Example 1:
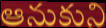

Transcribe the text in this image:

ఆనుకుని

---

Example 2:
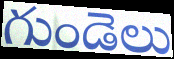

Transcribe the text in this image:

గుండెలు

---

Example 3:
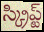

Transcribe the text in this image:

స్క్రిప్ట్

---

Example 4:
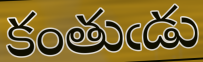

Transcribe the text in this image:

కంతుఁడు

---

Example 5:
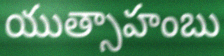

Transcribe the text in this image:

యుత్సాహంబు